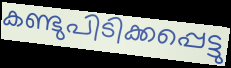
കണ്ടുപിടിക്കപ്പെട്ടു